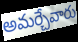
అమర్చేవారు